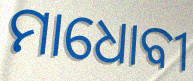
ମାଧୋବୀ